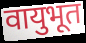
वायुभूत